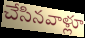
చేసినవాళ్లూ